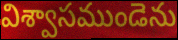
విశ్వాసముండెను